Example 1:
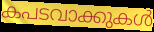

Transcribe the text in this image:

കപടവാക്കുകൾ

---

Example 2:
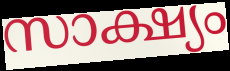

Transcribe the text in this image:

സാക്ഷ്യം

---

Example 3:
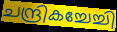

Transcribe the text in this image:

ചന്ദ്രികച്ചേച്ചി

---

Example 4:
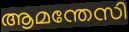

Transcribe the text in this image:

ആമന്തേസി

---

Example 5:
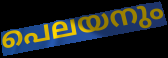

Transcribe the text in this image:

പെലയനും